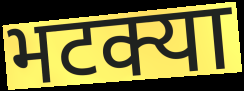
भटक्या